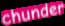
chunder